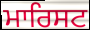
ਮਾਰਿਸਟ